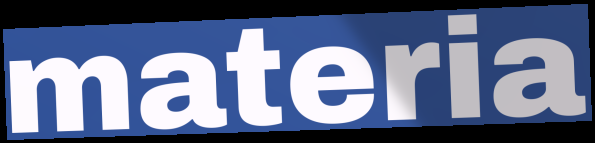
materia